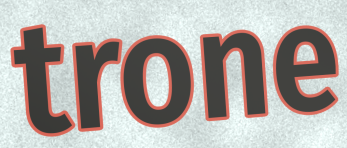
trone